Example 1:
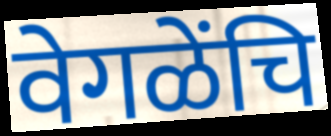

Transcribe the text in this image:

वेगळेंचि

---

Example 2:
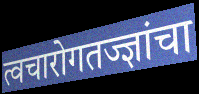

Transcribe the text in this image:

त्वचारोगतज्ज्ञांचा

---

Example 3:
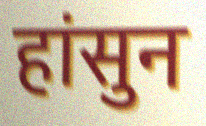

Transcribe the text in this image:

हांसुन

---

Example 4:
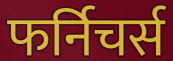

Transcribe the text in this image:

फर्निचर्स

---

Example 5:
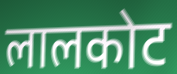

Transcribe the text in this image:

लालकोट